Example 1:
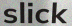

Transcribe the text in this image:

slick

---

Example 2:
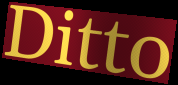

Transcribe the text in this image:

Ditto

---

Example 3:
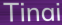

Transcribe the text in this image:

Tinai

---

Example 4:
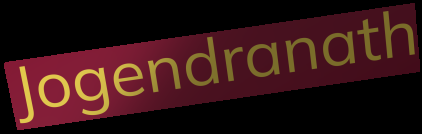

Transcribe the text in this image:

Jogendranath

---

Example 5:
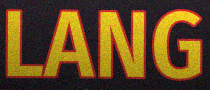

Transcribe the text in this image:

LANG